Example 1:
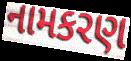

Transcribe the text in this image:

નામકરણ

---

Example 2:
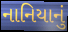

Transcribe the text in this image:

નાનિયાનું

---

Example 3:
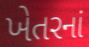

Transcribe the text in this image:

ખેતરનાં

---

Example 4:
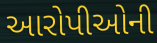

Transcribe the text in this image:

આરોપીઓની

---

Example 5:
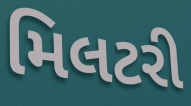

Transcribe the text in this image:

મિલટરી